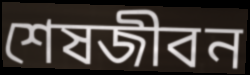
শেষজীবন